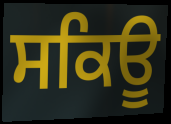
ਸਕਿਊ